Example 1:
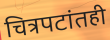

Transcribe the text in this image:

चित्रपटांतही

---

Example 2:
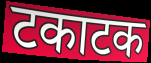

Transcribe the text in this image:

टकाटक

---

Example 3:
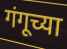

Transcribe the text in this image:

गंगूच्या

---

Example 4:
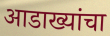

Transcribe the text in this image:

आडाख्यांचा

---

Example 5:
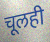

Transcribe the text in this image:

चूलही